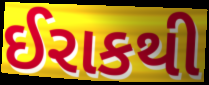
ઈરાકથી